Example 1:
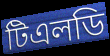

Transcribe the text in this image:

টিএলডি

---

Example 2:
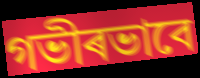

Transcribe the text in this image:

গভীৰভাবে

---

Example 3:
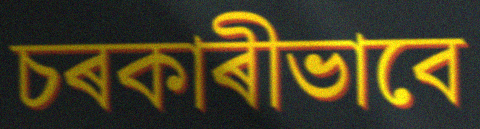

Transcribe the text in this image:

চৰকাৰীভাবে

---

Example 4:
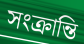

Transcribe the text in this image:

সংক্ৰান্তি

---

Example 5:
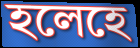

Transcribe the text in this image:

হলেহে